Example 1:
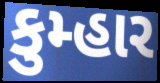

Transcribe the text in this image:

કુમ્હાર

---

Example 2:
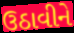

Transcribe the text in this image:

ઉઠાવીને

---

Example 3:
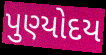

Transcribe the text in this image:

પુણ્યોદય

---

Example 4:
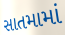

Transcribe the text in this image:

સાતમામાં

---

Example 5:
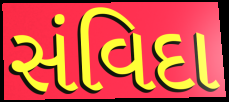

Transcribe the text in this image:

સંવિદા